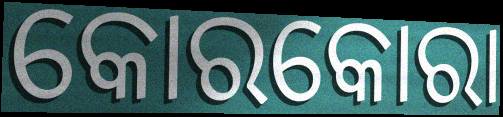
କୋରକୋରା